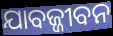
ଯାବଜ୍ଜୀବନ